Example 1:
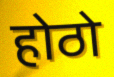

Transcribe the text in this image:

होठो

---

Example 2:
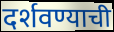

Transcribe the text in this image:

दर्शवण्याची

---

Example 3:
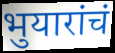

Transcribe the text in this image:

भुयारांचं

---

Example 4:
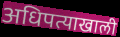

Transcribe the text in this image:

अधिपत्याखाली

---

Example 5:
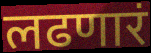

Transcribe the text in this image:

लढणारं